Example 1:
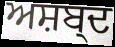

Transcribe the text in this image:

ਅਸ਼ਬ੍ਦ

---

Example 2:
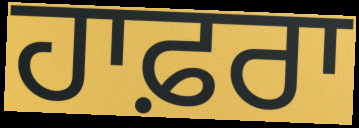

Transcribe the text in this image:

ਹਾਫ਼ਰਾ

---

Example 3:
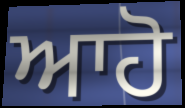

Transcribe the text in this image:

ਆਹੋ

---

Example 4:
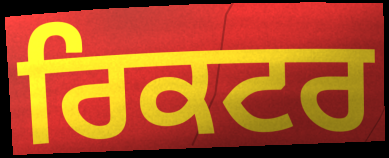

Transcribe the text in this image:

ਰਿਕਟਰ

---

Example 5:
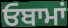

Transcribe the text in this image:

ਓਬਾਮਾਂ